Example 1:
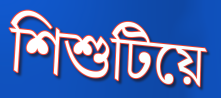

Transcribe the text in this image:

শিশুটিয়ে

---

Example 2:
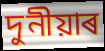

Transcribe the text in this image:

দুনীয়াৰ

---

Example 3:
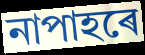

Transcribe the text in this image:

নাপাহৰে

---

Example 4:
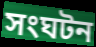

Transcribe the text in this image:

সংঘটন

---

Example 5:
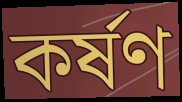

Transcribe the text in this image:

কৰ্ষণ